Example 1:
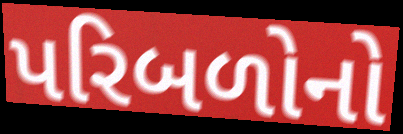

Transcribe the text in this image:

પરિબળોનો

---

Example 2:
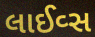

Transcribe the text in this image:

લાઈવ્સ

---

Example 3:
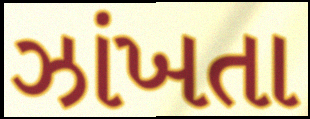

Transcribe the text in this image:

ઝાંખતા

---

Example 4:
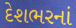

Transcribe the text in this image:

દેશભરનાં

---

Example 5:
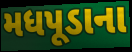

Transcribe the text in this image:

મધપૂડાના